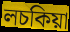
লচকিয়া